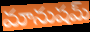
మానుషమ్